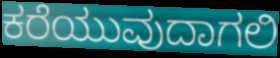
ಕರೆಯುವುದಾಗಲಿ